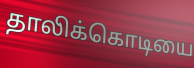
தாலிக்கொடியை